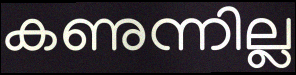
കണുന്നില്ല